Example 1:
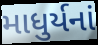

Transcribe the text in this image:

માધુર્યનાં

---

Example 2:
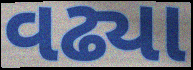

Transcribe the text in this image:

વઢ્યા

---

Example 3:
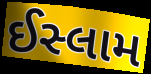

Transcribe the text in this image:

ઈસ્લામ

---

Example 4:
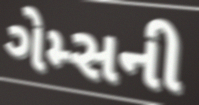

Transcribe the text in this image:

ગેમ્સની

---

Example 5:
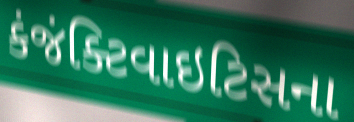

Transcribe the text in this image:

કંજંક્ટિવાઇટિસના